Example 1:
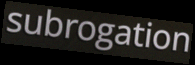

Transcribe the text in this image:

subrogation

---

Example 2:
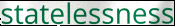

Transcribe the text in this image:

statelessness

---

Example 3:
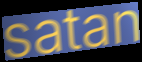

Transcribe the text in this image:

satan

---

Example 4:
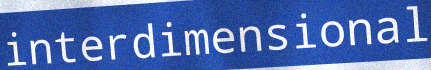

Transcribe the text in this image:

interdimensional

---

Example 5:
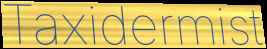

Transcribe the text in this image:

Taxidermist